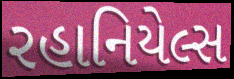
રહાનિયેલ્સ